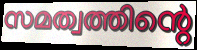
സമത്വത്തിന്റെ